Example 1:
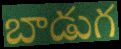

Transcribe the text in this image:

బాడుగ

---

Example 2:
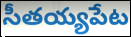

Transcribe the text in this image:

సీతయ్యపేట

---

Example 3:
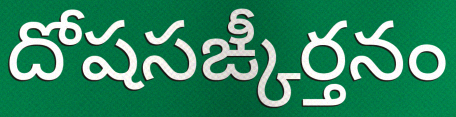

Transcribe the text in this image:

దోషసఙ్కీర్తనం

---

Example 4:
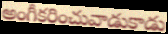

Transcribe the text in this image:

అంగీకరించువాడుకాడు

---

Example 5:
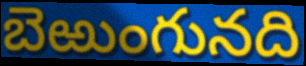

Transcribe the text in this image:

బెఱుంగునది